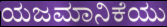
ಯಜಮಾನಿಕೆಯು